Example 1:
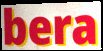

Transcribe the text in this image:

bera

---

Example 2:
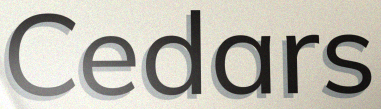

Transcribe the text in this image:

Cedars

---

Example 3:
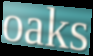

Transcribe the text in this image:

oaks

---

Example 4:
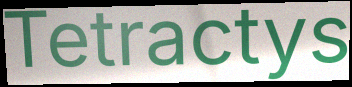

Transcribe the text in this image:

Tetractys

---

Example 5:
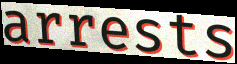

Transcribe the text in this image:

arrests